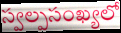
స్వల్పసంఖ్యలో